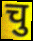
चु